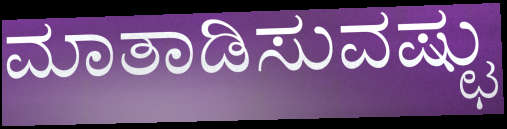
ಮಾತಾಡಿಸುವಷ್ಟು